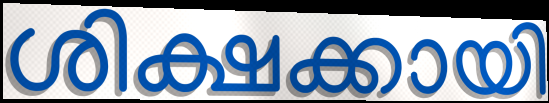
ശിക്ഷക്കായി